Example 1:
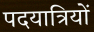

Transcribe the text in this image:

पदयात्रियों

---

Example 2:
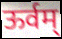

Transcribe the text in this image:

ऊर्वम्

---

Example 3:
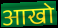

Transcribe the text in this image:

आखो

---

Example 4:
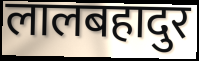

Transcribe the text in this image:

लालबहादुर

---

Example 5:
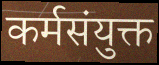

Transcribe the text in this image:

कर्मसंयुक्त